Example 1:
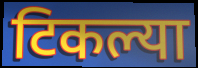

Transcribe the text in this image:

टिकल्या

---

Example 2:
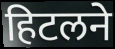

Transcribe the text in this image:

हिटलने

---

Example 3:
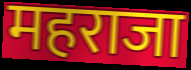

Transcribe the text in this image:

महराजा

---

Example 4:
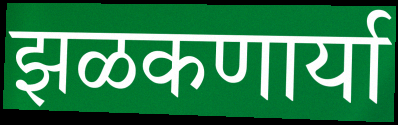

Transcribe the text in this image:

झळकणार्या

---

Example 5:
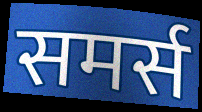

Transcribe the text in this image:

समर्स